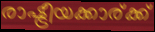
രാഷ്ട്രീയക്കാര്ക്ക്